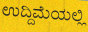
ಉದ್ದಿಮೆಯಲ್ಲಿ